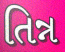
તિન્ન